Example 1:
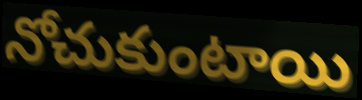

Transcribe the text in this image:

నోచుకుంటాయి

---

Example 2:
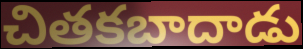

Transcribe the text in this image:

చితకబాదాడు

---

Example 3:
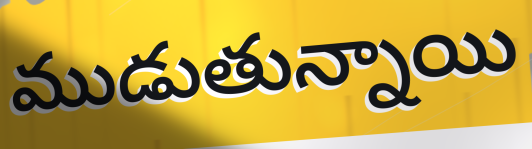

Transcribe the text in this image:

ముడుతున్నాయి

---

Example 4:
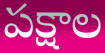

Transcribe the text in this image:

పక్షాల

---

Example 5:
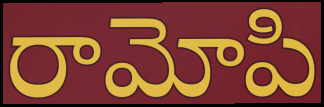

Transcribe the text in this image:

రామోపి